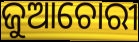
ଜୁଆଚୋରୀ